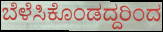
ಬೆಳೆಸಿಕೊಂಡದ್ದರಿಂದ